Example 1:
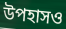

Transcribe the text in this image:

উপহাসও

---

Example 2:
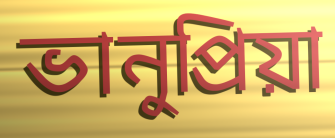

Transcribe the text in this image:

ভানুপ্রিয়া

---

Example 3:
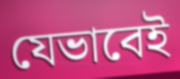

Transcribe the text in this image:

যেভাবেই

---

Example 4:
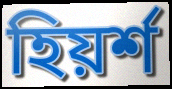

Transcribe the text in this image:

হিয়র্শ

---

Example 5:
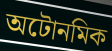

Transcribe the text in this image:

অটোনমিক